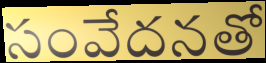
సంవేదనతో